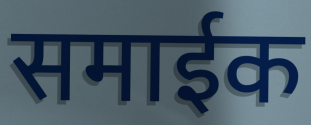
समाईक